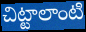
చిట్టాలాంటి